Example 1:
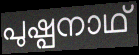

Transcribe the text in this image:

പുഷ്പനാഥ്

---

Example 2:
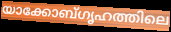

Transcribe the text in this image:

യാക്കോബ്ഗൃഹത്തിലെ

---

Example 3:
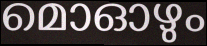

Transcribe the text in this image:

മൊഓഴും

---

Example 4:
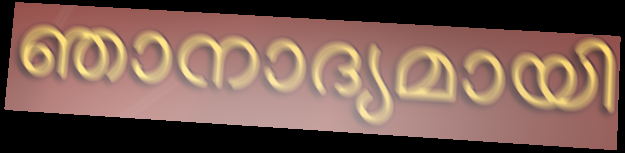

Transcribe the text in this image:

ഞാനാദ്യമായി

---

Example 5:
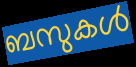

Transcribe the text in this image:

ബസുകൾ